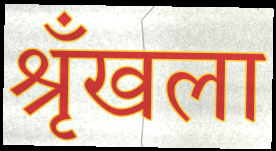
श्रृँखला